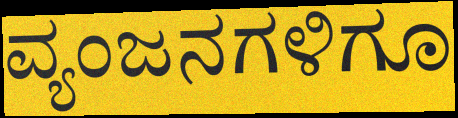
ವ್ಯಂಜನಗಳಿಗೂ